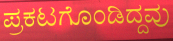
ಪ್ರಕಟಗೊಂಡಿದ್ದವು